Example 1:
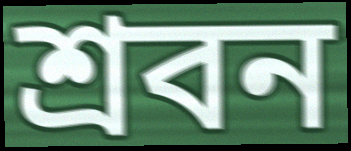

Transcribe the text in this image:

শ্ৰবন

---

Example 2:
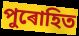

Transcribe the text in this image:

পুৰোহিত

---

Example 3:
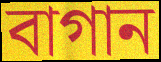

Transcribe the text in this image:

বাগান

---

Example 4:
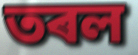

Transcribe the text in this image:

তৰল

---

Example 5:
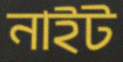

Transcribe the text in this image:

নাইট